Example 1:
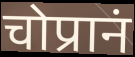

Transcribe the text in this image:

चोप्रानं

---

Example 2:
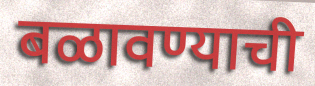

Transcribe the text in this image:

बळावण्याची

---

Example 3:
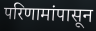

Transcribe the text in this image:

परिणामांपासून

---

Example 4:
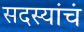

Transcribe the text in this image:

सदस्यांचं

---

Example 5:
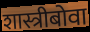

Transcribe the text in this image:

शास्त्रीबोवा